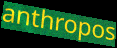
anthropos